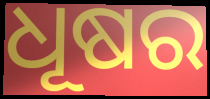
ଧୂଷର